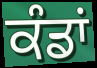
ਕੰਡਾਂ